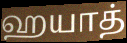
ஹயாத்